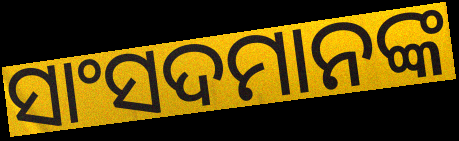
ସାଂସଦମାନଙ୍କ